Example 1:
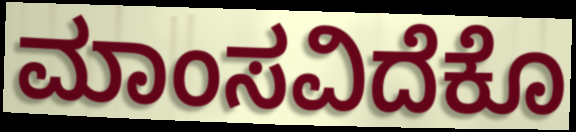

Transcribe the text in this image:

ಮಾಂಸವಿದೆಕೊ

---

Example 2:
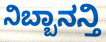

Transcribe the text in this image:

ನಿಬ್ಬಾನನ್ತಿ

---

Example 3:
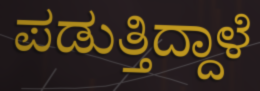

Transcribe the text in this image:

ಪಡುತ್ತಿದ್ದಾಳೆ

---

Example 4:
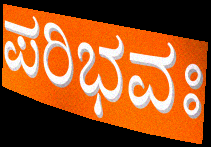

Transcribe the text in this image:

ಪರಿಭವಃ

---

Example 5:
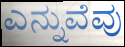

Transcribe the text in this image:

ಎನ್ನುವೆವು